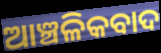
ଆଞ୍ଚଳିକବାଦ